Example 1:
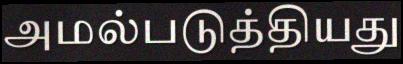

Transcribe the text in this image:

அமல்படுத்தியது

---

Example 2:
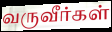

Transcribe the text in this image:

வருவீர்கள்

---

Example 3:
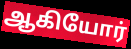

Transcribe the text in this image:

ஆகியோர்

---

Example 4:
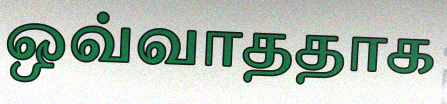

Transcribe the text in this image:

ஒவ்வாததாக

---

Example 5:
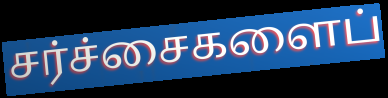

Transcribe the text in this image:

சர்ச்சைகளைப்